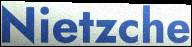
Nietzche